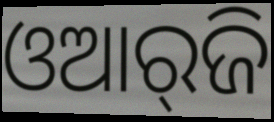
ଓଆର୍‌ଜି